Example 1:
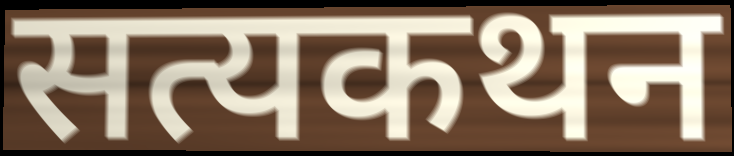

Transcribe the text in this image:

सत्यकथन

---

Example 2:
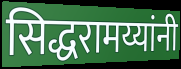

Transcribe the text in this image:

सिद्धरामय्यांनी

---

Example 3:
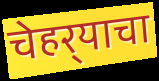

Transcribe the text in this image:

चेहर्‍याचा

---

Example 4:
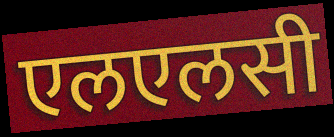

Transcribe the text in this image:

एलएलसी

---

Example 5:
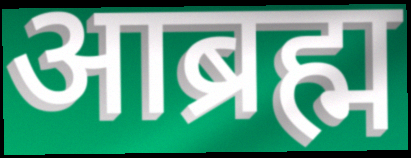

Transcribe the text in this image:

आब्रह्म